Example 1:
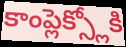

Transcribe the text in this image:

కాంప్లెక్స్లోకి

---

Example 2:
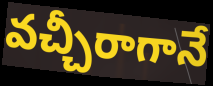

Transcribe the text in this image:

వచ్చీరాగానే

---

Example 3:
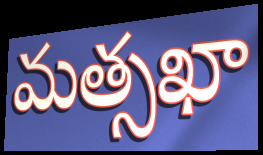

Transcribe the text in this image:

మత్సఖా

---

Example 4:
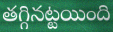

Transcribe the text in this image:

తగ్గినట్టయింది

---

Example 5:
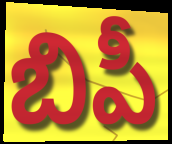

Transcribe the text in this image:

బిపీ